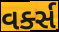
વર્ક્સ